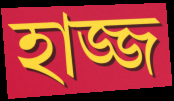
হাজ্জ